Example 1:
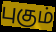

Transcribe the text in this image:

புகும்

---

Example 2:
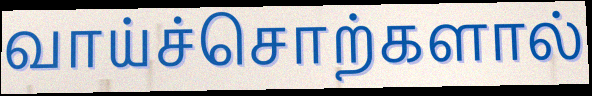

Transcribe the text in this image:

வாய்ச்சொற்களால்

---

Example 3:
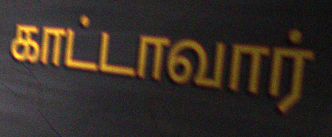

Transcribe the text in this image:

காட்டாவார்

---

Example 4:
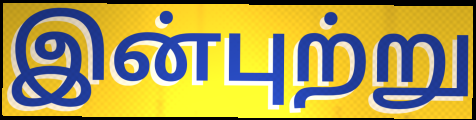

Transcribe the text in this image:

இன்புற்று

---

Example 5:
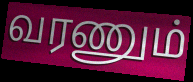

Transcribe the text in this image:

வரணும்